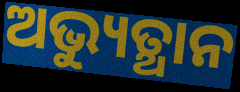
ଅଭ୍ୟୁତ୍ଥାନ